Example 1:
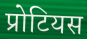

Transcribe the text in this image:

प्रोटियस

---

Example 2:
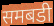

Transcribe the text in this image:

समबडी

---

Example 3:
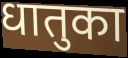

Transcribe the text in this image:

धातुका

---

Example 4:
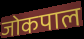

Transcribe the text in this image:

जोकपाल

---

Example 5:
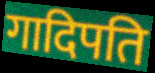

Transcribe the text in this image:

गादिपति